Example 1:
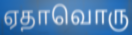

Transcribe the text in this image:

ஏதாவொரு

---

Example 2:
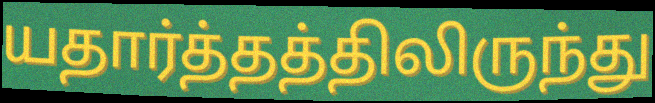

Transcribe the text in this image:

யதார்த்தத்திலிருந்து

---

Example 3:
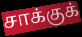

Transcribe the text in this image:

சாக்குக்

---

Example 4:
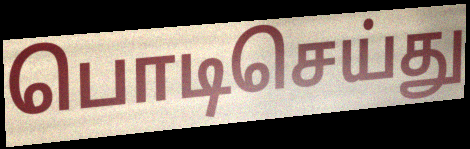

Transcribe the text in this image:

பொடிசெய்து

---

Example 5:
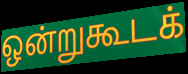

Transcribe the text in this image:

ஒன்றுகூடக்